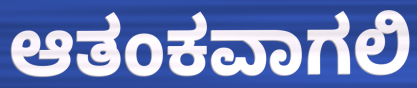
ಆತಂಕವಾಗಲಿ